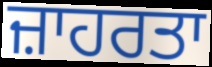
ਜ਼ਾਹਰਤਾ